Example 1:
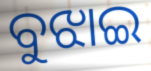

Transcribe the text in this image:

ବୁଝାଇ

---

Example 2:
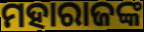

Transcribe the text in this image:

ମହାରାଜଙ୍କ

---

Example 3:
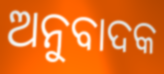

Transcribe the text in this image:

ଅନୁବାଦକ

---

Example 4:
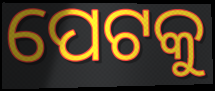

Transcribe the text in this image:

ପେଟକୁ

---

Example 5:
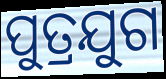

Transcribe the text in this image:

ପୁତ୍ରଯୁଗ